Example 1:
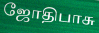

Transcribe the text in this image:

ஜோதிபாசு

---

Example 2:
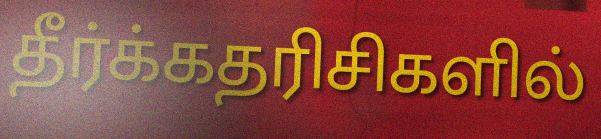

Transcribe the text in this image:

தீர்க்கதரிசிகளில்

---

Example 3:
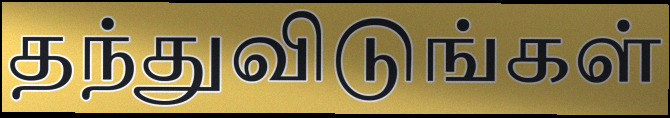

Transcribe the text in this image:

தந்துவிடுங்கள்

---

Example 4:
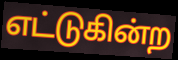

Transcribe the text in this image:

எட்டுகின்ற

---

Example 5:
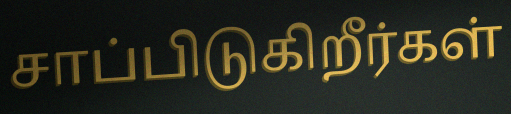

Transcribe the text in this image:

சாப்பிடுகிறீர்கள்